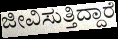
ಜೀವಿಸುತ್ತಿದ್ದಾರೆ